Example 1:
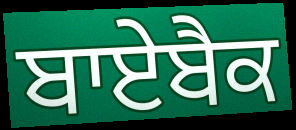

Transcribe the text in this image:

ਬਾਏਬੈਕ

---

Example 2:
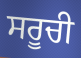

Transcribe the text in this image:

ਸਰੂਚੀ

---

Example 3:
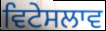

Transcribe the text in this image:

ਵਿਟੇਸਲਾਵ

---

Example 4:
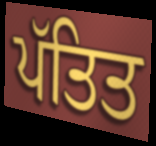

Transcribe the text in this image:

ਪੱਤਿਤ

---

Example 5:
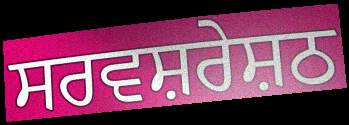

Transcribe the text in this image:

ਸਰਵਸ਼ਰੇਸ਼ਠ